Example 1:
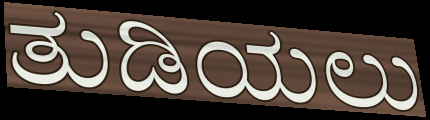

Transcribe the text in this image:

ತುಡಿಯಲು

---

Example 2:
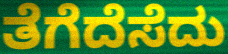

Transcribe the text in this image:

ತೆಗೆದೆಸೆದು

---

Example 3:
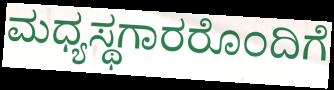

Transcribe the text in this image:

ಮಧ್ಯಸ್ಥಗಾರರೊಂದಿಗೆ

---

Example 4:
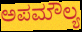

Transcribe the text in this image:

ಅಪಮೌಲ್ಯ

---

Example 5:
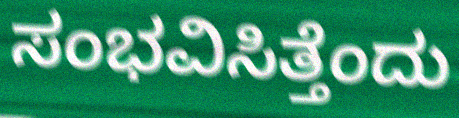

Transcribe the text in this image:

ಸಂಭವಿಸಿತ್ತೆಂದು